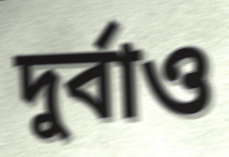
দুর্বাও